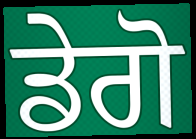
ਡੇਗੋ